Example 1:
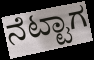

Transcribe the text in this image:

ನೆಟ್ಟಾಗ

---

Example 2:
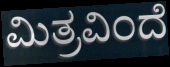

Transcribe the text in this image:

ಮಿತ್ರವಿಂದೆ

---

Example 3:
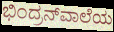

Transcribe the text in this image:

ಭಿಂದ್ರನ್‌ವಾಲೆಯ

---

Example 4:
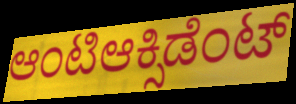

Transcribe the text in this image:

ಆಂಟಿಆಕ್ಸಿಡೆಂಟ್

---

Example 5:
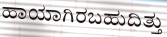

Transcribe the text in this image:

ಹಾಯಾಗಿರಬಹುದಿತ್ತು